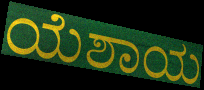
ಯೆಶಾಯ